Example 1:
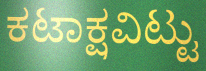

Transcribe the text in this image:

ಕಟಾಕ್ಷವಿಟ್ಟು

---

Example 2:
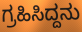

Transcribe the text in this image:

ಗ್ರಹಿಸಿದ್ದನು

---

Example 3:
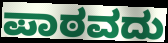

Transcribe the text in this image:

ಪಾಠವದು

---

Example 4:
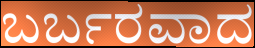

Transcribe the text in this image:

ಬರ್ಬರವಾದ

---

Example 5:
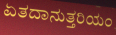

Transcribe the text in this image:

ಏತದಾನುತ್ತರಿಯಂ